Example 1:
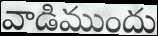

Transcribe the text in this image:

వాడిముందు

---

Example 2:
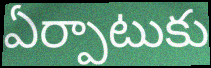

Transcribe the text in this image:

ఏర్పాటుకు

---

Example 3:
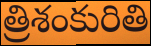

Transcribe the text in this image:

త్రిశంకురితి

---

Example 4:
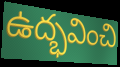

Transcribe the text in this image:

ఉద్భవించి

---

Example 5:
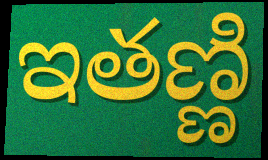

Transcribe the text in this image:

ఇతణ్ణి